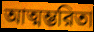
আত্মম্ভরিতা